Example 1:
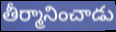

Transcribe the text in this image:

తీర్మానించాడు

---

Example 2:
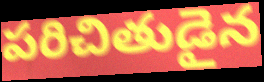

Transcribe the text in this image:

పరిచితుడైన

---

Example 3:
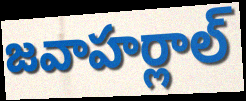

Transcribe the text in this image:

జవాహర్లాల్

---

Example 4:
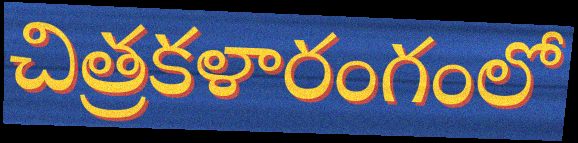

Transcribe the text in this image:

చిత్రకళారంగంలో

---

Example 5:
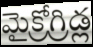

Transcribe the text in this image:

మైక్రోగ్రిడ్ల